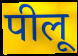
पीलू